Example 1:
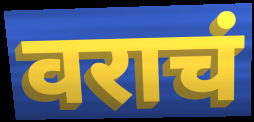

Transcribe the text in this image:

वराचं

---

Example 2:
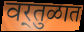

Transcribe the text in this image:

वर्तुळात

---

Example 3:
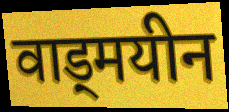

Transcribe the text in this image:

वाड्‌मयीन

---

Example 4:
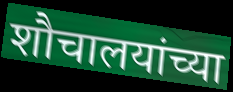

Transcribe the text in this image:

शौचालयांच्या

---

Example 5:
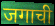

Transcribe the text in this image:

जगाची